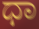
ಧಾ